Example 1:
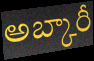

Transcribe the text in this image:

అబ్కారీ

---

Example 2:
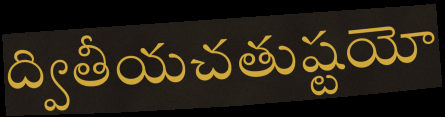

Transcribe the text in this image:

ద్వితీయచతుష్టయో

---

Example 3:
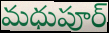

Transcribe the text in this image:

మధుపూర్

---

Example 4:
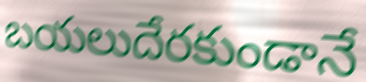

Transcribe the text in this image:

బయలుదేరకుండానే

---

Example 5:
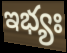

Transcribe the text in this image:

ఇభ్యః